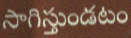
సాగిస్తుండటం